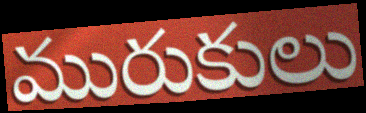
మురుకులు